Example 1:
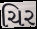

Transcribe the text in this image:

ચિર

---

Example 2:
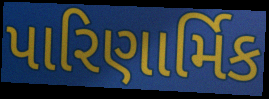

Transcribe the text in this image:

પારિણાર્મિક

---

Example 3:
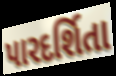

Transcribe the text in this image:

પારદર્શિતા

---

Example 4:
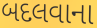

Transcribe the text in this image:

બદલવાના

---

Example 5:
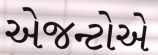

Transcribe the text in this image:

એજન્ટોએ